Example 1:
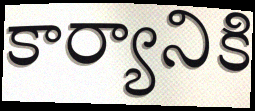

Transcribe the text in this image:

కార్యానికి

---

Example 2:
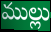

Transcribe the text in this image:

ముల్లు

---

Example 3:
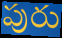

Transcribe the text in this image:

పురు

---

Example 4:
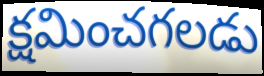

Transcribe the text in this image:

క్షమించగలడు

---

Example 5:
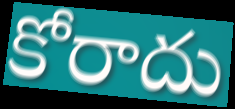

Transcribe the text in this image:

కోరాదు